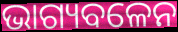
ଭାଗ୍ୟବଳେନ